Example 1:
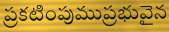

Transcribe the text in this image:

ప్రకటింపుముప్రభువైన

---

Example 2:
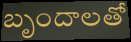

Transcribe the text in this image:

బృందాలతో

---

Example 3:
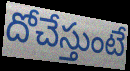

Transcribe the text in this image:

దోచేస్తుంటే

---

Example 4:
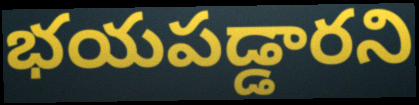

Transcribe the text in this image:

భయపడ్డారని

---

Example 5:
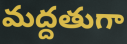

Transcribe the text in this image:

మద్దతుగా